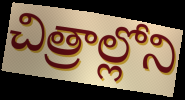
చిత్రాల్లోని